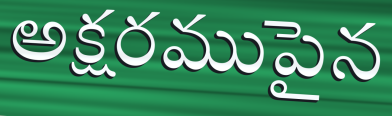
అక్షరముపైన